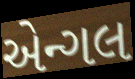
એન્ગલ